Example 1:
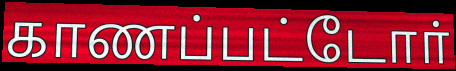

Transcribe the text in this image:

காணப்பட்டோர்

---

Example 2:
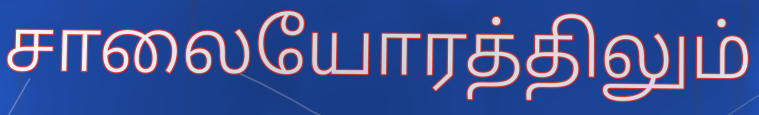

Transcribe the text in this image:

சாலையோரத்திலும்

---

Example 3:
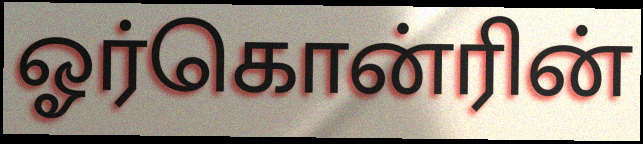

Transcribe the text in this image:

ஓர்கொன்ரின்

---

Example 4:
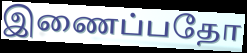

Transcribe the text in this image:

இணைப்பதோ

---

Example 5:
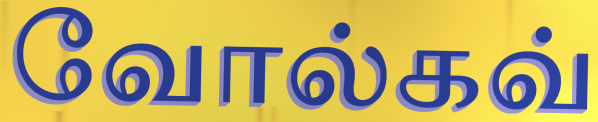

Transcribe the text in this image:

வோல்கவ்